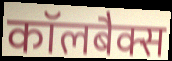
कॉलबैक्स